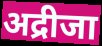
अद्रीजा